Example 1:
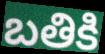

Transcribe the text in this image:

బతికి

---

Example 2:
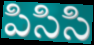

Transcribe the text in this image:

పిసిసి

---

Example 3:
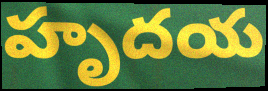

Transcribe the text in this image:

హృదయ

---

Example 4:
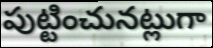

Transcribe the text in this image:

పుట్టించునట్లుగా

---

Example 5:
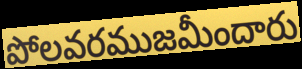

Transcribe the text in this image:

పోలవరముజమీందారు